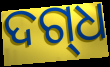
ଦଗ୍‍ଧ